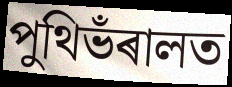
পুথিভঁৰালত